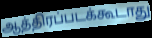
ஆத்திரப்படக்கூடாது